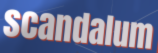
scandalum